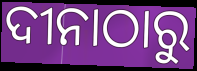
ଦୀନାଠାରୁ